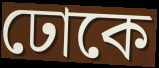
ঢোকে